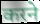
करने